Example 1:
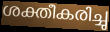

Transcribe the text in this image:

ശക്തീകരിച്ചു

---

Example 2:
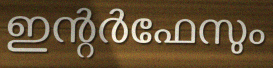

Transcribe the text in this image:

ഇന്റർഫേസും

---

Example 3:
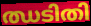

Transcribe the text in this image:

ഝടിതി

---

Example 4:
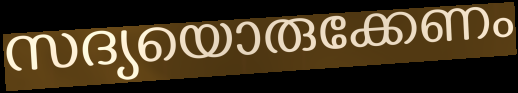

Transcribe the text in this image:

സദ്യയൊരുക്കേണം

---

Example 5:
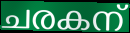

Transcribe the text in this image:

ചരകന്